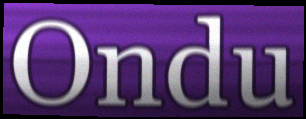
Ondu